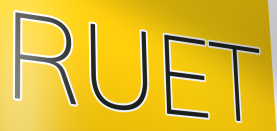
RUET